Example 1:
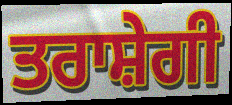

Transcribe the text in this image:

ਤਰਾਸ਼ੇਗੀ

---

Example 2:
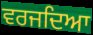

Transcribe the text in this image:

ਵਰਜਦਿਆ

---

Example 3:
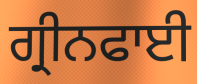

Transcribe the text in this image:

ਗ੍ਰੀਨਫਾਈ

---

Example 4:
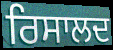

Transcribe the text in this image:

ਰਿਸਾਲਦ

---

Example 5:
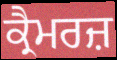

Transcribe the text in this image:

ਕ੍ਰੈਮਰਜ਼